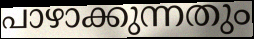
പാഴാക്കുന്നതും